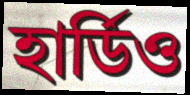
হার্ডিও